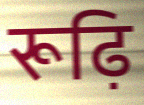
रूढ़ि